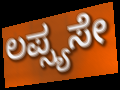
ಲಪ್ಸ್ಯಸೇ